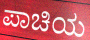
ಪಾಚಿಯ